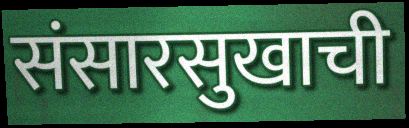
संसारसुखाची